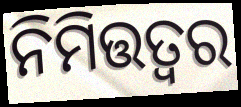
ନିମିତ୍ତତ୍ଵର